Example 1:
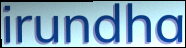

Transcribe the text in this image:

irundha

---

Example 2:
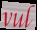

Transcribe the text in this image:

vul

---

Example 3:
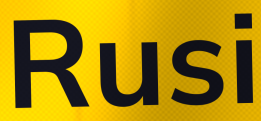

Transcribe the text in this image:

Rusi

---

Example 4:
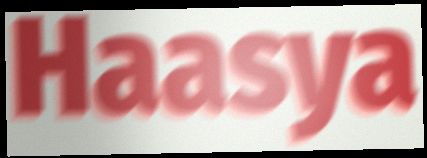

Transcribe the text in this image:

Haasya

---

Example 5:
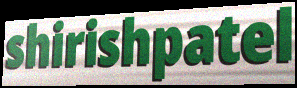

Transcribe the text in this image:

shirishpatel